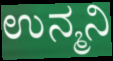
ಉನ್ಮನಿ